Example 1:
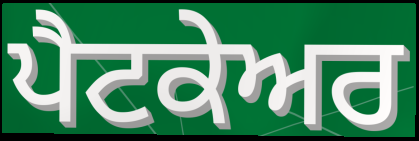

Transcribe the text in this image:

ਪੈਟਕੇਅਰ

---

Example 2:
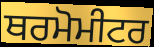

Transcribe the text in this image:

ਥਰਮੋਮੀਟਰ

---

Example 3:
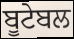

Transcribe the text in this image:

ਬੂਟੇਬਲ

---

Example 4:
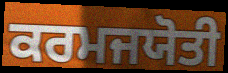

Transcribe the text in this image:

ਕਰਮਜਯੋਤੀ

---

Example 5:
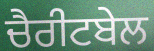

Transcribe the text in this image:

ਚੈਰੀਟਬੇਲ